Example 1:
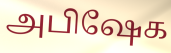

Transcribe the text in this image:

அபிஷேக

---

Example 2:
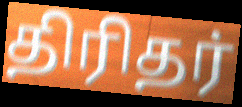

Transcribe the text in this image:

திரிதர்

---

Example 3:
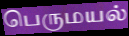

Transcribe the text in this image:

பெருமயல்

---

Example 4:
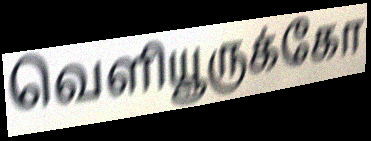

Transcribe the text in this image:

வெளியூருக்கோ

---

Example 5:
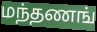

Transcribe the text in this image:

மந்தணங்